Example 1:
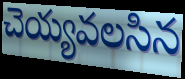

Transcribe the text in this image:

చెయ్యవలసిన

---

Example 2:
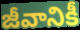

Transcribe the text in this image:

జీవానికీ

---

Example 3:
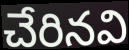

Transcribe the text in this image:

చేరినవి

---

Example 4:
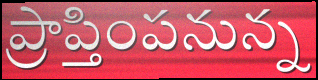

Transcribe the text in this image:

ప్రాప్తింపనున్న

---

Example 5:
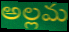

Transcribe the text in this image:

అల్లమ